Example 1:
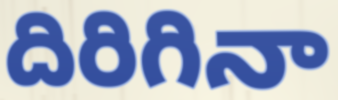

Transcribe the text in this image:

దిరిగినా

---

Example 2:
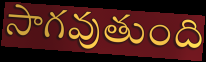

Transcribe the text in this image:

సాగవుతుంది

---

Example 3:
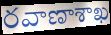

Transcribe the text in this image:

రవాణాశాఖ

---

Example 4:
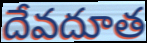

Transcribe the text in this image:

దేవదూత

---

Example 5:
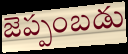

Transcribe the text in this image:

జెప్పంబడు